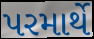
પરમાર્થે